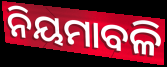
ନିୟମାବଳି